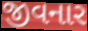
જીવનાર